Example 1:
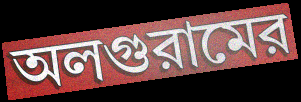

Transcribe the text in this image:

অলগুরামের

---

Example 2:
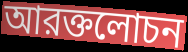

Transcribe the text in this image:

আরক্তলোচন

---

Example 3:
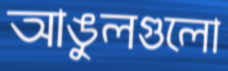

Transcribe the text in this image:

আঙুলগুলো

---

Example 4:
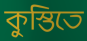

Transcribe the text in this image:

কুস্তিতে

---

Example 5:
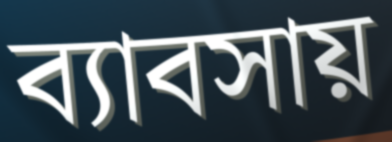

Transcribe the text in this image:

ব্যাবসায়